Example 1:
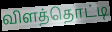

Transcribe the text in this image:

விளத்தொட்டி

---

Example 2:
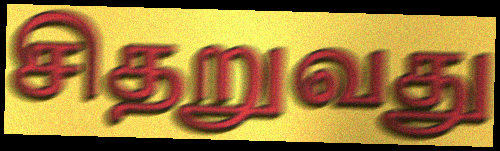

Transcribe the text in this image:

சிதறுவது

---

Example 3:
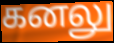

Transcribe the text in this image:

கனலு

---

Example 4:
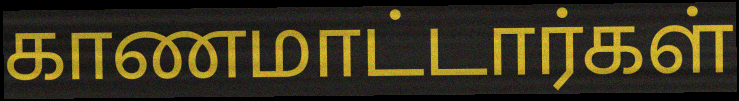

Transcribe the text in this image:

காணமாட்டார்கள்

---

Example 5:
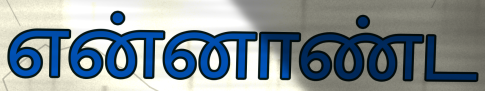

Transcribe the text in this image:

என்னாண்ட